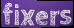
fixers